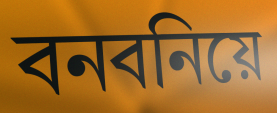
বনবনিয়ে